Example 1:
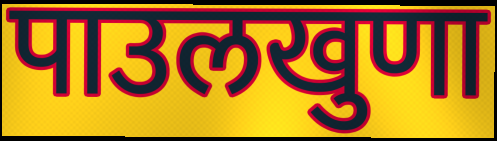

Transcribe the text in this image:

पाउलखुणा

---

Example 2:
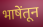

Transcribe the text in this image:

भाषेंतून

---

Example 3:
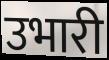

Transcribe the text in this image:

उभारी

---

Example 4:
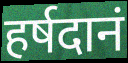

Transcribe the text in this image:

हर्षदानं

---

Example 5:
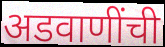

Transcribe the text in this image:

अडवाणींची